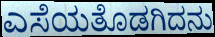
ಎಸೆಯತೊಡಗಿದನು